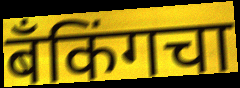
बँकिंगचा